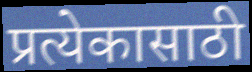
प्रत्येकासाठी